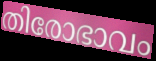
തിരോഭാവം